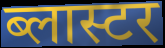
ब्लास्टर